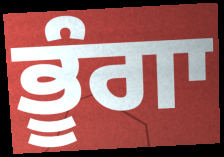
ਭੂੰਗਾ